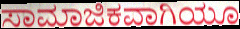
ಸಾಮಾಜಿಕವಾಗಿಯೂ